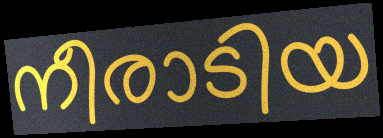
നീരാടിയ